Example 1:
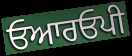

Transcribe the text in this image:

ਓਆਰਓਪੀ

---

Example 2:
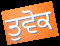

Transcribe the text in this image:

ਤੁਵੋਕ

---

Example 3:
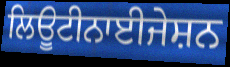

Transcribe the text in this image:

ਲਿਊਟੀਨਾਈਜੇਸ਼ਨ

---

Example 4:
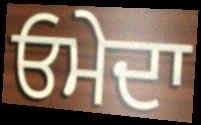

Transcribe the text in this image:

ਓਮੇਦਾ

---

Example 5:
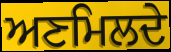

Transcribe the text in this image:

ਅਣਮਿਲਦੇ